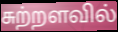
சுற்றளவில்